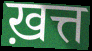
ख़त्त